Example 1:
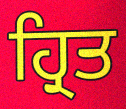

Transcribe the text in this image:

ਹ੍ਰਿਤ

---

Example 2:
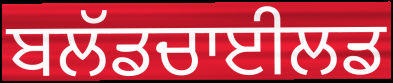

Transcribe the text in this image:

ਬਲੱਡਚਾਈਲਡ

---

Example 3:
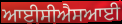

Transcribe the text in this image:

ਆਈਸੀਐਸਆਈ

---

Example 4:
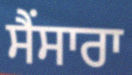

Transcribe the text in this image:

ਸੈਂਸਾਰਾ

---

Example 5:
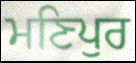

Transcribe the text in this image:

ਮਣਿਪੁਰ